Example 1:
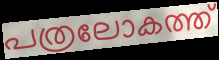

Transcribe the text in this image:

പത്രലോകത്ത്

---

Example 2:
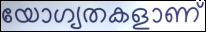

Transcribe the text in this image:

യോഗ്യതകളാണ്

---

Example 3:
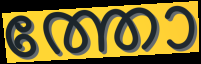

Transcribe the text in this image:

ത്തോ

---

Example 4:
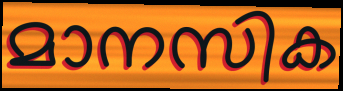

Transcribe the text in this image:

മാനസിക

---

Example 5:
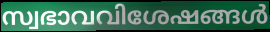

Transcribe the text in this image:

സ്വഭാവവിശേഷങ്ങൾ